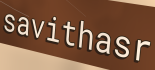
savithasr